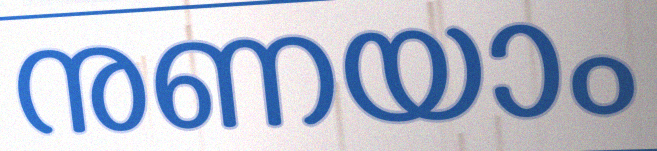
നുണയാം